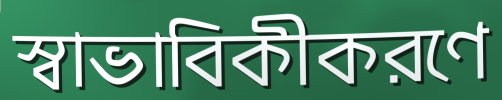
স্বাভাবিকীকরণে